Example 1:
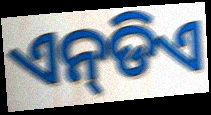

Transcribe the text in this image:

ଏନ୍‌ଡିଏ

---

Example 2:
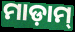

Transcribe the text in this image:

ମାଡ଼ାମ୍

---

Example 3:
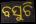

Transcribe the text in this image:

ବସୁଚି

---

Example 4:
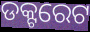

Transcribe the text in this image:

ଡକ୍ଟରେଟ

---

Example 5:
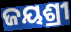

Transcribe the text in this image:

ଜୟଶ୍ରୀ